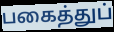
பகைத்துப்